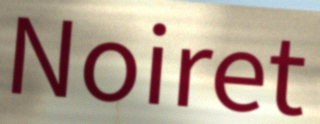
Noiret